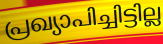
പ്രഖ്യാപിച്ചിട്ടില്ല